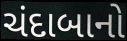
ચંદાબાનો